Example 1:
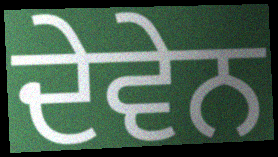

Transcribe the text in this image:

ਦੇਵੇਨ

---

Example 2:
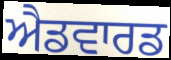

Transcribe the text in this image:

ਐਡਵਾਰਡ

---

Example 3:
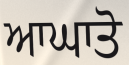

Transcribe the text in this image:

ਆਘਾਤੋ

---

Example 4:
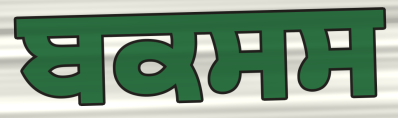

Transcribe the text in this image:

ਬਕਸਸ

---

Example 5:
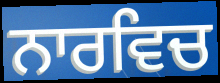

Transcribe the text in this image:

ਨਾਰਵਿਚ